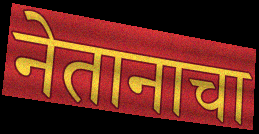
नेतानाचा